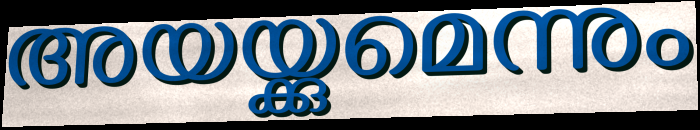
അയയ്ക്കുമെന്നും